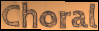
Choral